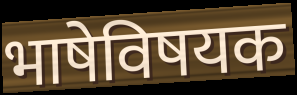
भाषेविषयक